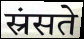
स्रंसते